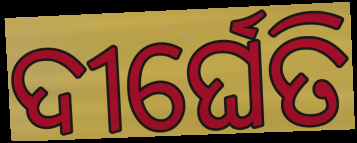
ଦୀର୍ଘେତି